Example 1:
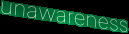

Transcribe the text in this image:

unawareness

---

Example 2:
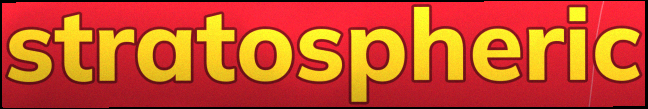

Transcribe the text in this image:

stratospheric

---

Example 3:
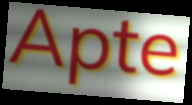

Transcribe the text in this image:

Apte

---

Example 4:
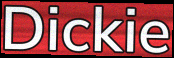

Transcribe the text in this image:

Dickie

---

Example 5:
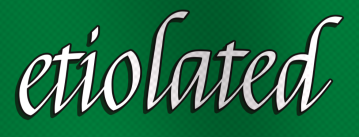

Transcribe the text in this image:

etiolated